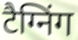
टैग्निंग